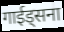
गाईड्सना